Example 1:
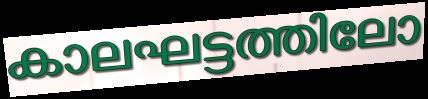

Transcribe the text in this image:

കാലഘട്ടത്തിലോ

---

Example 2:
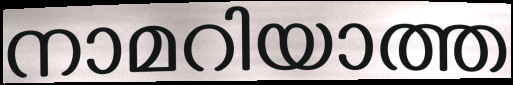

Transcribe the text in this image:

നാമറിയാത്ത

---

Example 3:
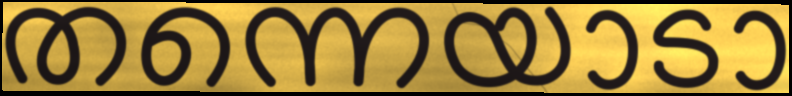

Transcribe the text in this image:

തന്നെയാടാ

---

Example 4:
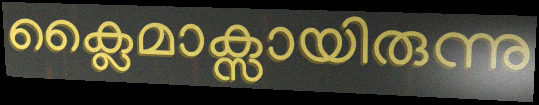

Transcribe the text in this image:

ക്ലൈമാക്സായിരുന്നു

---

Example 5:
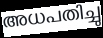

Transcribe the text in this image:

അധപതിച്ചു